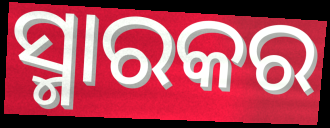
ସ୍ମାରକର